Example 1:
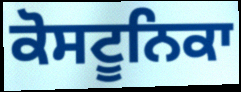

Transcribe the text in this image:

ਕੋਸਟੂਨਿਕਾ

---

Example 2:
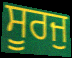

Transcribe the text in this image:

ਸੂਰਜੁ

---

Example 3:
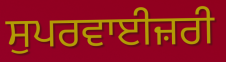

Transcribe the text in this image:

ਸੁਪਰਵਾਈਜ਼ਰੀ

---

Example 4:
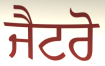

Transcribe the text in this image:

ਜੈਟਰੋ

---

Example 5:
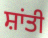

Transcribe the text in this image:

ਸ਼ਾਂਤੀ